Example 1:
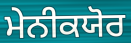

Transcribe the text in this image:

ਮੇਨੀਕਯੋਰ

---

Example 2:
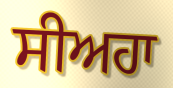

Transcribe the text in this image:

ਸੀਅਹਾ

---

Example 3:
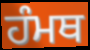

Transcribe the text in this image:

ਹੰਮਥ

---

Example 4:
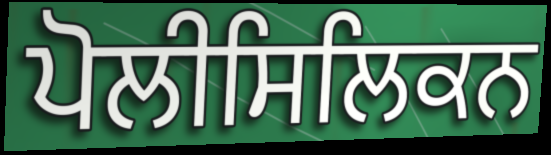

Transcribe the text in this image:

ਪੋਲੀਸਿਲਿਕਨ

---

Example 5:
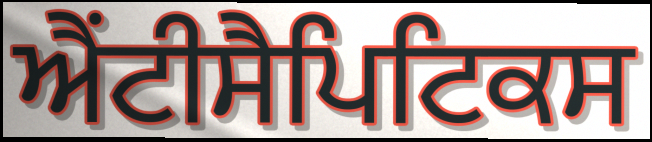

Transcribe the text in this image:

ਐਂਟੀਸੈਪਿਟਿਕਸ